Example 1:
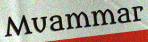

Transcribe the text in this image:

Muammar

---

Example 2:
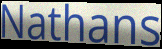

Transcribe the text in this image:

Nathans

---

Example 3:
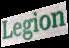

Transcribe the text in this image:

Legion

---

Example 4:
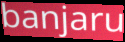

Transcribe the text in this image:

banjaru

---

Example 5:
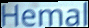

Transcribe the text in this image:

Hemal